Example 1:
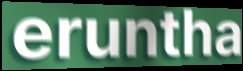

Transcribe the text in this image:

eruntha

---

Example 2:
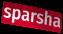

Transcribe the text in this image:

sparsha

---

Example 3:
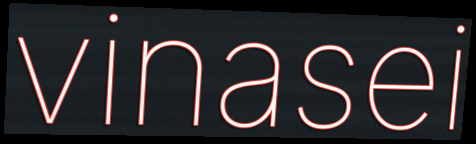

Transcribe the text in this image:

vinasei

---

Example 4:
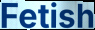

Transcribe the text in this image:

Fetish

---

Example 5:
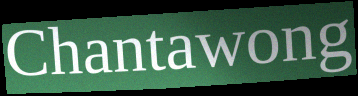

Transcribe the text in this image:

Chantawong